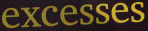
excesses